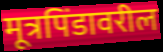
मूत्रपिंडावरील